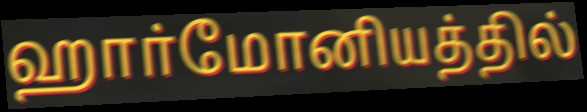
ஹார்மோனியத்தில்